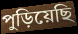
পুড়িয়েছি